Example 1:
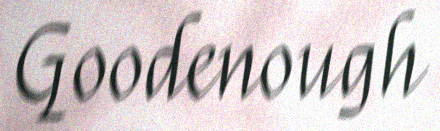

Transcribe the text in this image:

Goodenough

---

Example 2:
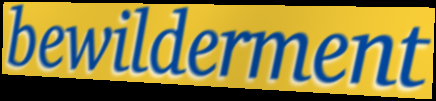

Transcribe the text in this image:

bewilderment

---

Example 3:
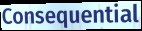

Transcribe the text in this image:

Consequential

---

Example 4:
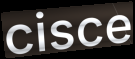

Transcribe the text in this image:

cisce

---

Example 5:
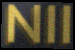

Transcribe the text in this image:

NII